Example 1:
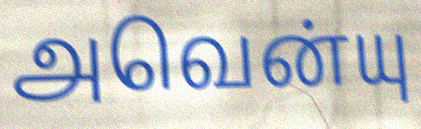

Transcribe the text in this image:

அவென்யு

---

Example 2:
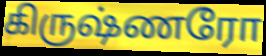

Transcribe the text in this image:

கிருஷ்ணரோ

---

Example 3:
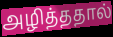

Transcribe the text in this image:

அழித்ததால்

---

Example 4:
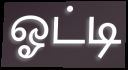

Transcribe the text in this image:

ஓட்டி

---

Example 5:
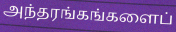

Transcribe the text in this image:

அந்தரங்கங்களைப்